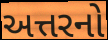
અત્તરનો